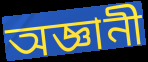
অজ্ঞানী